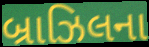
બ્રાઝિલના